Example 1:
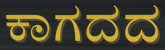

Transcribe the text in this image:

ಕಾಗದದ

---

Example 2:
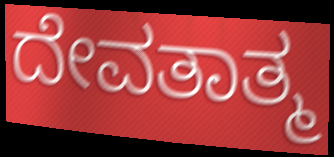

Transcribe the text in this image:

ದೇವತಾತ್ಮ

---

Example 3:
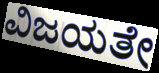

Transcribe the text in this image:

ವಿಜಯತೇ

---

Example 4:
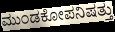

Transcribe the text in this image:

ಮುಂಡಕೋಪನಿಷತ್ತು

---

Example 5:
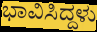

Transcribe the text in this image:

ಭಾವಿಸಿದ್ದಳು